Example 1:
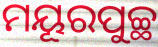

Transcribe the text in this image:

ମୟୂରପୁଚ୍ଛ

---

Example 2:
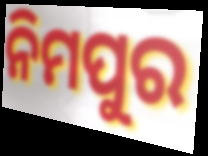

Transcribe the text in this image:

ନିମପୁର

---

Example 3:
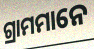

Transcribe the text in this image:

ଗ୍ରାମମାନେ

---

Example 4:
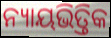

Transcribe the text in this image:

ନ୍ୟାୟଭିତ୍ତିକ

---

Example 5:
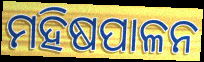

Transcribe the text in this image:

ମହିଷପାଳନ